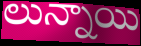
లున్నాయి